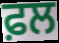
ਫ਼ਲ